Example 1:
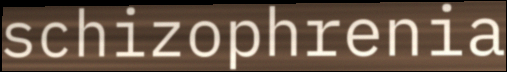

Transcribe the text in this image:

schizophrenia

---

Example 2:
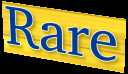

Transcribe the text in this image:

Rare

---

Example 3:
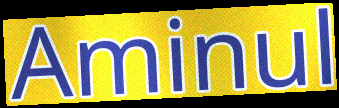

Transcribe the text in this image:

Aminul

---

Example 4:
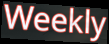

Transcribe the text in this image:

Weekly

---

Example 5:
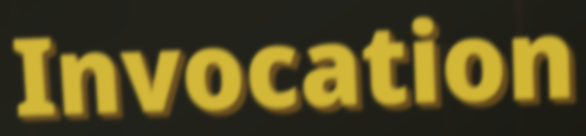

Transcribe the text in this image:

Invocation